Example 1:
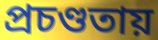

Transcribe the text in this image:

প্রচণ্ডতায়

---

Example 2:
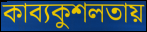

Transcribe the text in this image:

কাব্যকুশলতায়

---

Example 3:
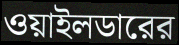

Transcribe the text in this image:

ওয়াইলডারের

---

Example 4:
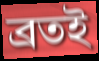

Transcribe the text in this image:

ব্রতই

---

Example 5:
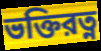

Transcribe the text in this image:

ভক্তিরত্ন